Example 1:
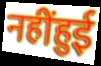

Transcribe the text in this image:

नहींहुई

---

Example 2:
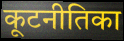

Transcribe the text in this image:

कूटनीतिका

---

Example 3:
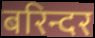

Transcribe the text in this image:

बरिन्दर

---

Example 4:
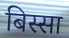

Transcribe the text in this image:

बिस्सा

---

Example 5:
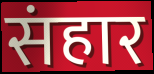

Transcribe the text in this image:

संहार